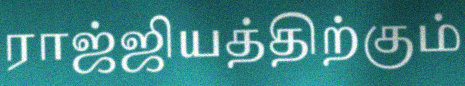
ராஜ்ஜியத்திற்கும்